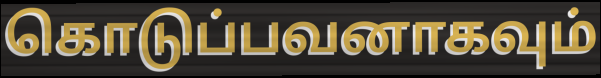
கொடுப்பவனாகவும்